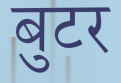
बुटर